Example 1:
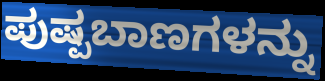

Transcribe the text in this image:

ಪುಷ್ಪಬಾಣಗಳನ್ನು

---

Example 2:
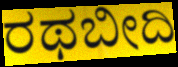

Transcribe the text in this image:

ರಥಬೀದಿ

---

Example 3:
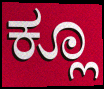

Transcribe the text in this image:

ಕ್ಲೂ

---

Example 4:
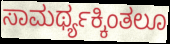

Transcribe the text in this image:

ಸಾಮರ್ಥ್ಯಕ್ಕಿಂತಲೂ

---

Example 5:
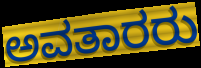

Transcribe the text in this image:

ಅವತಾರರು